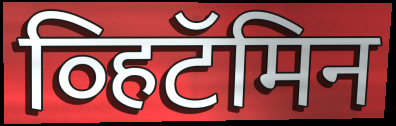
व्हिटॅमिन